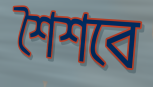
শৈশবে